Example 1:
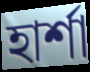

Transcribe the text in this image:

হার্শা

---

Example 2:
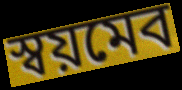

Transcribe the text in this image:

স্বয়মেব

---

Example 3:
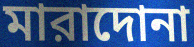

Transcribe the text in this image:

মারাদোনা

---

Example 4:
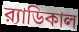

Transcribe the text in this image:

র‍্যাডিকাল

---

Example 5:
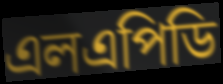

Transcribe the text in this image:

এলএপিডি